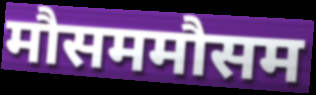
मौसममौसम